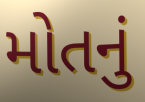
મોતનું